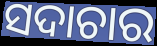
ସଦାଚାର